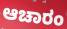
ಆಚಾರಂ